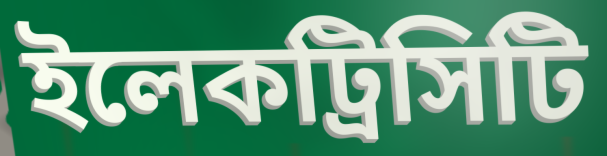
ইলেকট্রিসিটি